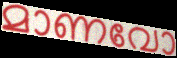
മാണവോ